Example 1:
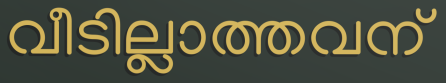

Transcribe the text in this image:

വീടില്ലാത്തവന്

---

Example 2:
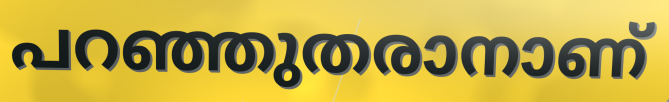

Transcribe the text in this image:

പറഞ്ഞുതരാനാണ്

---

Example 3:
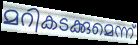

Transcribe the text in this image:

മറികടക്കുമെന്ന്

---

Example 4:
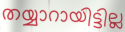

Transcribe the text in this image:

തയ്യാറായിട്ടില്ല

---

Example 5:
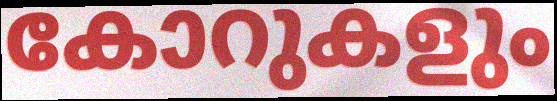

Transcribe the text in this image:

കോറുകളും